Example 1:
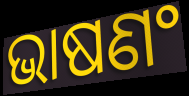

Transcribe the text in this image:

ଭାଷଣଂ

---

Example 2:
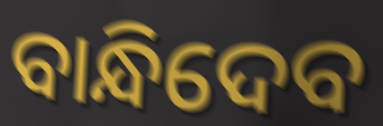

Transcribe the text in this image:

ବାନ୍ଧିଦେବ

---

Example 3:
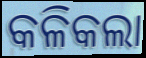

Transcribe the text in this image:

କଳିକଲା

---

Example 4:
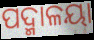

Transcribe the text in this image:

ପଦ୍ମାଳୟା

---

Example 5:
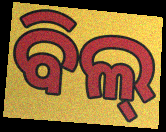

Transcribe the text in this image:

ବିଲ୍